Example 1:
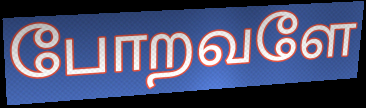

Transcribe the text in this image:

போறவளே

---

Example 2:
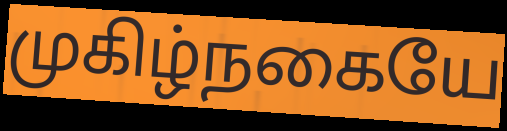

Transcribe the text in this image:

முகிழ்நகையே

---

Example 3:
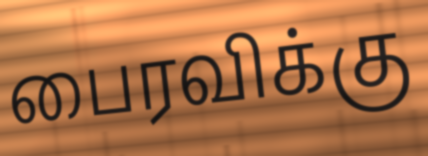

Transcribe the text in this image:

பைரவிக்கு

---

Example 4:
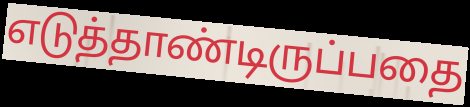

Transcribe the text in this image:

எடுத்தாண்டிருப்பதை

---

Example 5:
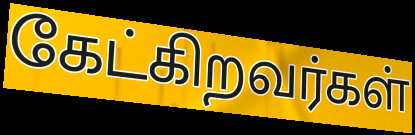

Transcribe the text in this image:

கேட்கிறவர்கள்